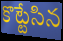
కొట్టేసిన